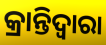
କ୍ରାନ୍ତିଦ୍ୱାରା